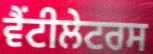
ਵੈਂਟੀਲੇਟਰਸ